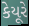
કેયૂરે